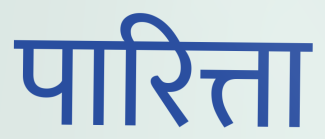
पारित्ता